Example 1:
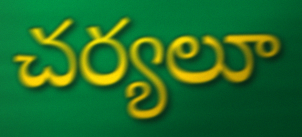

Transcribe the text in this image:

చర్యలూ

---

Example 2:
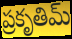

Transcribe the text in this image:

ప్రకృతిమ్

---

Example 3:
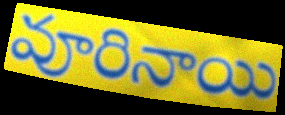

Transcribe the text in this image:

వూరినాయి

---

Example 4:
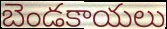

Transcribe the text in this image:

బెండకాయలు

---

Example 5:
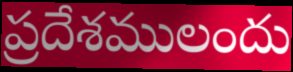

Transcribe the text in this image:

ప్రదేశములందు